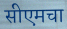
सीएमचा